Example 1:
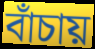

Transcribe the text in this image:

বাঁচায়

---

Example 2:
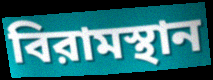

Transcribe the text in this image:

বিরামস্থান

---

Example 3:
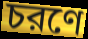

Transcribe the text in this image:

চরণে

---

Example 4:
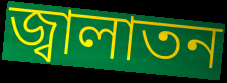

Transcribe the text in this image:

জ্বালাতন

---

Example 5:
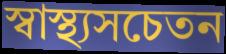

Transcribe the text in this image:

স্বাস্থ্যসচেতন